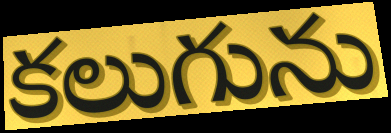
కలుగును